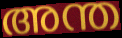
അന്ത